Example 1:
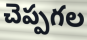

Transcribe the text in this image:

చెప్పగల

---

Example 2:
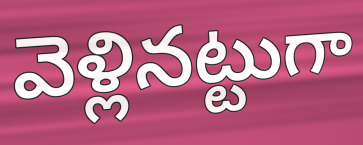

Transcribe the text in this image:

వెళ్లినట్టుగా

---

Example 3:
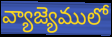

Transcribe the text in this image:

వ్యాజ్యెములో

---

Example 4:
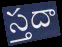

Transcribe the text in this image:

స్తదా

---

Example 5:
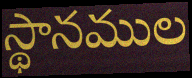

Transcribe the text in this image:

స్థానముల